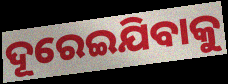
ଦୂରେଇଯିବାକୁ